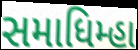
સમાધિમ્હા